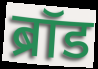
ब्रॉड